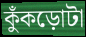
কুঁকড়োটা